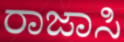
ರಾಜಾಸಿ